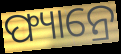
ଫ୍ୟାନ୍ରେ